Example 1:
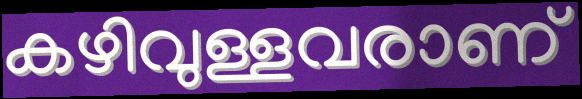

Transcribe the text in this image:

കഴിവുള്ളവരാണ്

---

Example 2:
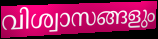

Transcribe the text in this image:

വിശ്വാസങ്ങളും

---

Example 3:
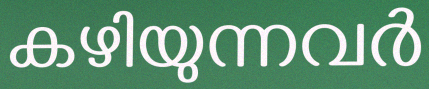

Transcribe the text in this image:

കഴിയുന്നവർ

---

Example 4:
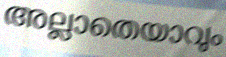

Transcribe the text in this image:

അല്ലാതെയാവും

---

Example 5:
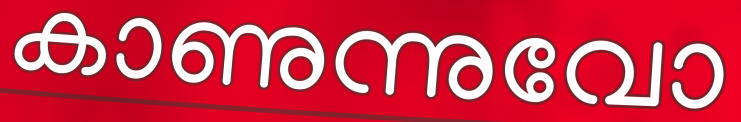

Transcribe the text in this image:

കാണുന്നുവോ